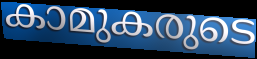
കാമുകരുടെ